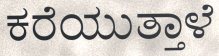
ಕರೆಯುತ್ತಾಳೆ